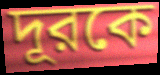
দূরকে